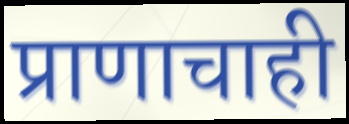
प्राणाचाही